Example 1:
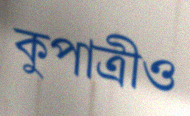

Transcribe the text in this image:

কুপাত্রীও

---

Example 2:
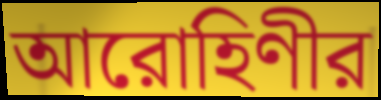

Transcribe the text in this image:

আরোহিণীর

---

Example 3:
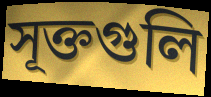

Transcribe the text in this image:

সূক্তগুলি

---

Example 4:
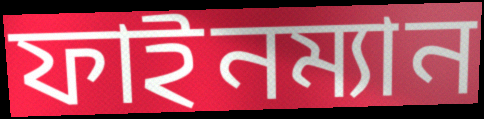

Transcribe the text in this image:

ফাইনম্যান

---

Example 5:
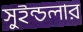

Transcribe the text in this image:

সুইন্ডলার